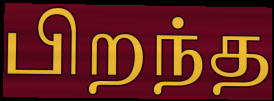
பிறந்த